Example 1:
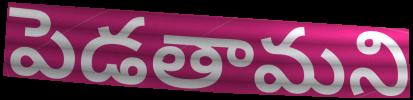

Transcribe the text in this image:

పెడతామని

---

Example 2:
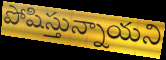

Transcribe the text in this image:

పోషిస్తున్నాయని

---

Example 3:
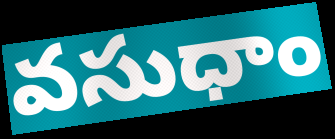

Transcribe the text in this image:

వసుధాం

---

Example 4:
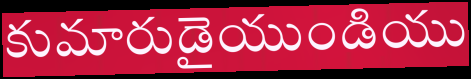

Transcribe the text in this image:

కుమారుడైయుండియు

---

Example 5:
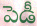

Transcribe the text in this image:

పెడీ